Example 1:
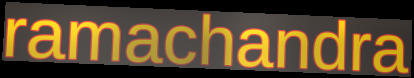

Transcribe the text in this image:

ramachandra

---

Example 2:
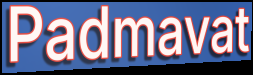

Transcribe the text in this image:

Padmavat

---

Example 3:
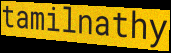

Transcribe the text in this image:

tamilnathy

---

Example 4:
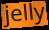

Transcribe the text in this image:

jelly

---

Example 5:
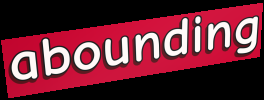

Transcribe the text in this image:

abounding